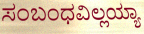
ಸಂಬಂಧವಿಲ್ಲಯ್ಯಾ